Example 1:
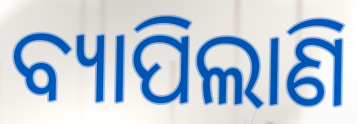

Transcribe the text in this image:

ବ୍ୟାପିଲାଣି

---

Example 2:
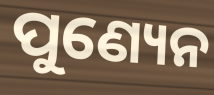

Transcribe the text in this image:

ପୁଣ୍ୟେନ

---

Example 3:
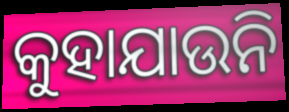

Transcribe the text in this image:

କୁହାଯାଉନି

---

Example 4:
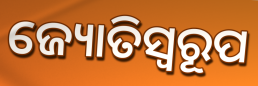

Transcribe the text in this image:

ଜ୍ୟୋତିସ୍ୱରୂପ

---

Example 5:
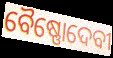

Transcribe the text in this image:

ବୈଷ୍ଣୋଦେବୀ